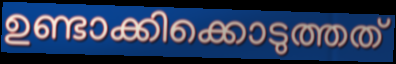
ഉണ്ടാക്കിക്കൊടുത്തത്